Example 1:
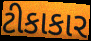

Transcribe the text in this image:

ટીકાકાર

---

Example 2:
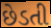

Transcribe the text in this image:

છેડતી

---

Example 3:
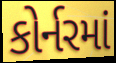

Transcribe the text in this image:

કોર્નરમાં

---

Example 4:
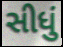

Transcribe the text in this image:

સીધું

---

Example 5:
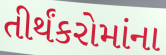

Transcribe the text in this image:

તીર્થંકરોમાંના